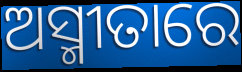
ଅସ୍ମୀତାରେ